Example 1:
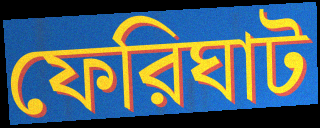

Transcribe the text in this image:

ফেরিঘাট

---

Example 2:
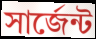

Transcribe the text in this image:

সার্জেন্ট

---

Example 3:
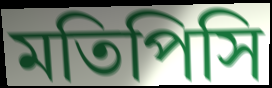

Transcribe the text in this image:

মতিপিসি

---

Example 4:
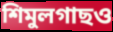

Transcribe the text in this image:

শিমুলগাছও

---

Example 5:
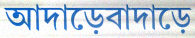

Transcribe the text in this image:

আদাড়েবাদাড়ে